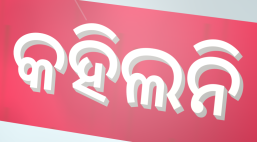
କହିଲନି